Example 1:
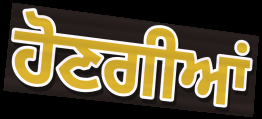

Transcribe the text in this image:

ਹੋਣਗੀਆਂ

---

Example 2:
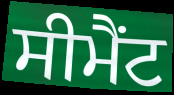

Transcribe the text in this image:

ਸੀਮੈੰਟ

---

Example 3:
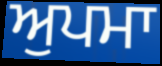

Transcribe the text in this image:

ਅੁਪਮਾ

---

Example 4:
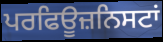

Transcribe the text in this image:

ਪਰਫਿਊਜ਼ਨਿਸਟਾਂ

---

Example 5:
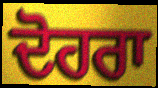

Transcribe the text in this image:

ਦੋਹਰਾ